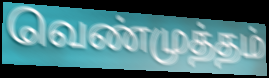
வெண்முத்தம்